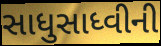
સાધુસાધ્વીની